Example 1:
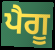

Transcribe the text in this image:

ਪੈਗੂ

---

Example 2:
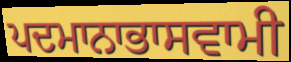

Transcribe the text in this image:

ਪਦਮਾਨਾਭਾਸਵਾਮੀ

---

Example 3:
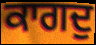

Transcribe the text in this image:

ਕਾਗਦੁ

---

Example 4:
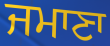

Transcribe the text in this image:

ਜਮਾਣਾ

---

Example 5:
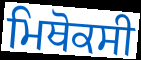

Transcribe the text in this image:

ਮਿਥੋਕਸੀ